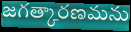
జగత్కారణమను